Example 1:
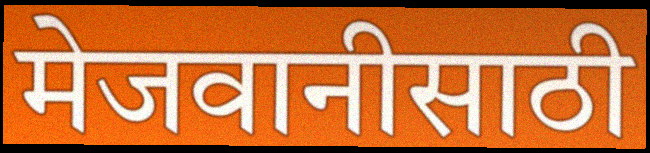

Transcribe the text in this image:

मेजवानीसाठी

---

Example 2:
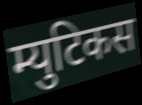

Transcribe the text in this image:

म्युटिकस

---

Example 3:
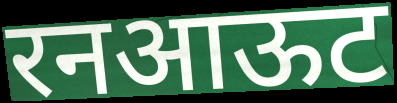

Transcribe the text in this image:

रनआऊट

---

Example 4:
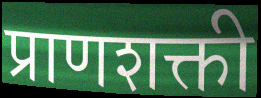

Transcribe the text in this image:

प्राणशक्ती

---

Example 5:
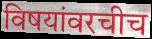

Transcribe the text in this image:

विषयांवरचीच